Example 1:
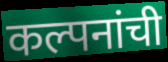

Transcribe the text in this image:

कल्पनांची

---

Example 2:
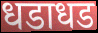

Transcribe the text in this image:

धडाधड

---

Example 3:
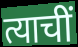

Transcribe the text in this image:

त्याचीं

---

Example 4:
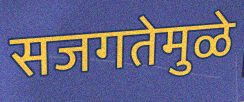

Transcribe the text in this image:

सजगतेमुळे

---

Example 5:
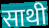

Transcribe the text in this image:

साथी